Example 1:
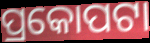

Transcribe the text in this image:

ପ୍ରକୋପଟା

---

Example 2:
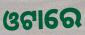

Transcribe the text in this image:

ଓଟାରେ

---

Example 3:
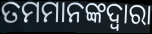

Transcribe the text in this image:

ତମମାନଙ୍କଦ୍ଵାରା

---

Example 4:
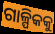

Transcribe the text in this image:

ଗାଳ୍ପିକକୁ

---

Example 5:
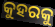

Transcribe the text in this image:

କୁହରକୁ